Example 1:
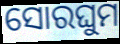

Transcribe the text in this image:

ସୋରଘୁମ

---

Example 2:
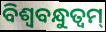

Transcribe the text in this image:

ବିଶ୍ଵବନ୍ଧୁତ୍ଵମ୍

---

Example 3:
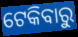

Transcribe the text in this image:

ଟେକିବାରୁ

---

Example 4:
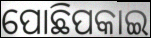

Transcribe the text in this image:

ପୋଛିପକାଇ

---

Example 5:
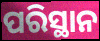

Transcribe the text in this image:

ପରିସ୍ଥାନ